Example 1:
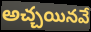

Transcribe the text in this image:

అచ్చయినవే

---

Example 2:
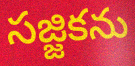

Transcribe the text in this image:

సజ్జికను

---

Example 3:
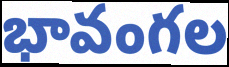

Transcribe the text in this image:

భావంగల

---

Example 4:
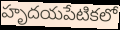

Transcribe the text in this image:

హృదయపేటికలో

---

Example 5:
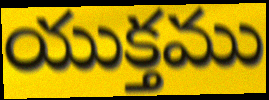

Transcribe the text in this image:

యుక్తము